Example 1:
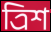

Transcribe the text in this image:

ত্ৰিশ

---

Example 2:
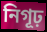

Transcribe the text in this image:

নিগূঢ়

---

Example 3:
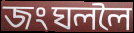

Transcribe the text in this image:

জংঘললৈ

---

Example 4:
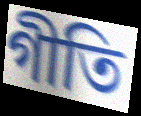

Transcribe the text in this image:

গীতি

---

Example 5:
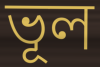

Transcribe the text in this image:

ভূল